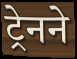
ट्रेनने